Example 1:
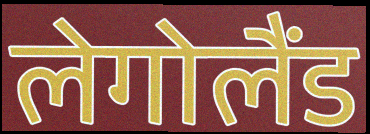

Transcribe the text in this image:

लेगोलैंड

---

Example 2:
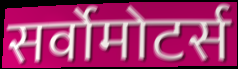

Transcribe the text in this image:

सर्वोमोटर्स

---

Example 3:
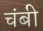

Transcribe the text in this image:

चंबी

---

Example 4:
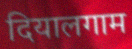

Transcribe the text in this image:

दियालगाम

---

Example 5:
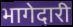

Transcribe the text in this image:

भागेदारी